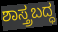
ಶಾಸ್ತ್ರಬದ್ಧ